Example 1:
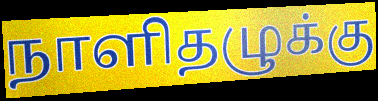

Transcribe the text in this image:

நாளிதழுக்கு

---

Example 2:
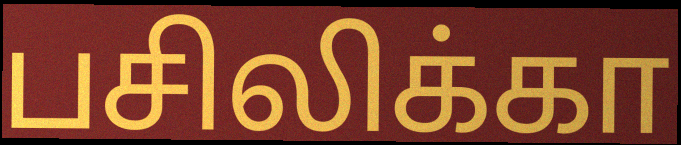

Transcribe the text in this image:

பசிலிக்கா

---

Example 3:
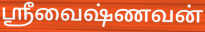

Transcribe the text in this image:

ஸ்ரீவைஷ்ணவன்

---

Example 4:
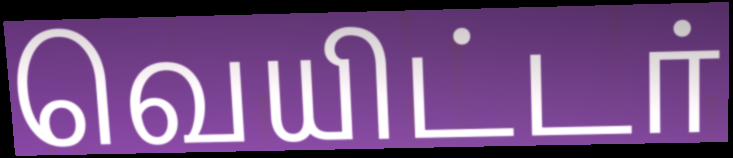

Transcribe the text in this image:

வெயிட்டர்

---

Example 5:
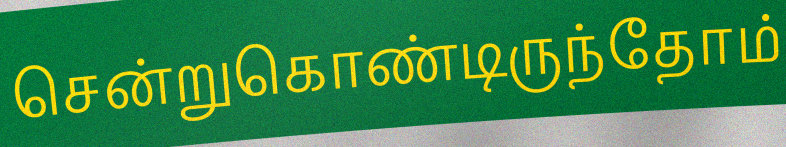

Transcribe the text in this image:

சென்றுகொண்டிருந்தோம்